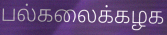
பல்கலைக்கழக